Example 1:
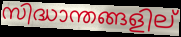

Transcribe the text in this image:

സിദ്ധാന്തങ്ങളില്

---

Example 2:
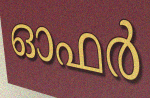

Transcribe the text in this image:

ഓഫർ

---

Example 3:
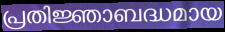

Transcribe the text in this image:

പ്രതിജ്ഞാബദ്ധമായ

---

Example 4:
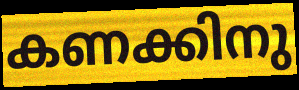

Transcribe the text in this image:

കണക്കിനു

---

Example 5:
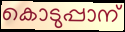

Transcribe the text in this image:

കൊടുപ്പാന്